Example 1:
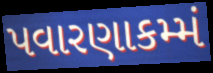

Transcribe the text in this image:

પવારણાકમ્મં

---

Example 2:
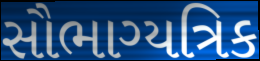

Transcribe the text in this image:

સૌભાગ્યત્રિક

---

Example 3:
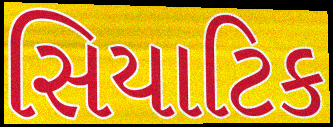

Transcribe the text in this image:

સિયાટિક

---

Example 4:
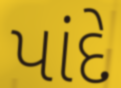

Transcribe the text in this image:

પાંદે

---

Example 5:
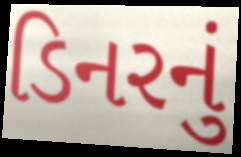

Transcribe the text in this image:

ડિનરનું